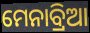
ମେନାବ୍ରିଆ